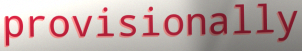
provisionally